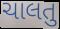
ચાલતુ